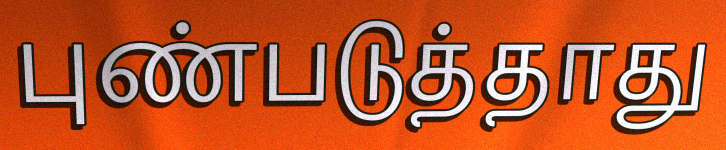
புண்படுத்தாது